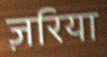
ज़रिया